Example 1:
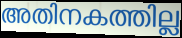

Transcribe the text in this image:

അതിനകത്തില്ല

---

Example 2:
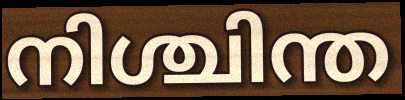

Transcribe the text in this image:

നിശ്ചിന്ത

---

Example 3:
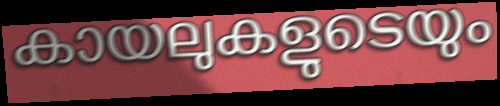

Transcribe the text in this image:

കായലുകളുടെയും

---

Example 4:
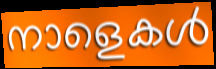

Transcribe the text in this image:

നാളെകൾ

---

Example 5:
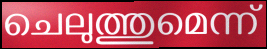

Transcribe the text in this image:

ചെലുത്തുമെന്ന്